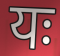
यः